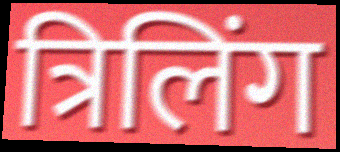
त्रिलिंग